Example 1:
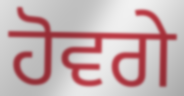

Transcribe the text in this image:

ਹੋਵਗੇ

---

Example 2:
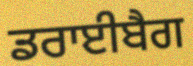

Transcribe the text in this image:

ਡਰਾਈਬੈਗ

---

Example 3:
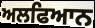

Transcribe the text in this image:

ਅਲਫਿਆਨ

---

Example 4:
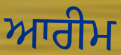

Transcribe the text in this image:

ਆਰੀਮ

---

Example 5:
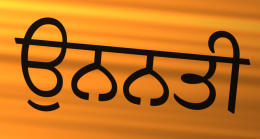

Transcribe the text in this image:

ਉਨਨਤੀ